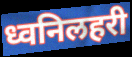
ध्वनिलहरी